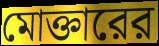
মোক্তারের